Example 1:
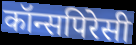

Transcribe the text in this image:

कॉन्सपिरेसी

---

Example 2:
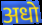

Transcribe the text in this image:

अधो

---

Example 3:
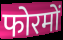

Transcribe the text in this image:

फोरमों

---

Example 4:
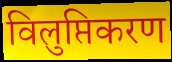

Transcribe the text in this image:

विलुप्तिकरण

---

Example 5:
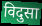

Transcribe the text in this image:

विदुसा